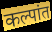
कल्पांत